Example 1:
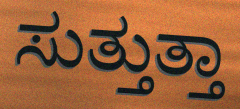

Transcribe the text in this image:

ಸುತ್ತುತ್ತಾ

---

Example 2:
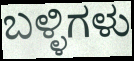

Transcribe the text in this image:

ಬಳ್ಳಿಗಳು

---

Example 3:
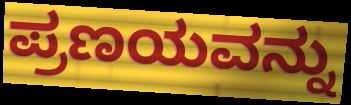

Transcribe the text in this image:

ಪ್ರಣಯವನ್ನು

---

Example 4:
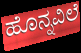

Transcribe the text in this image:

ಹೊನ್ನವಿಲೆ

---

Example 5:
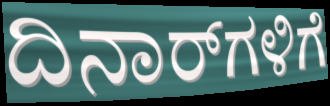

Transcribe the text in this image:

ದಿನಾರ್‌ಗಳಿಗೆ